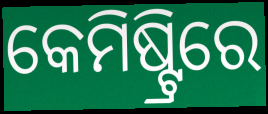
କେମିଷ୍ଟ୍ରିରେ